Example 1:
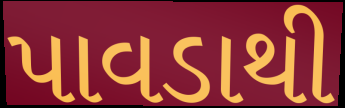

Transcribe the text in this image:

પાવડાથી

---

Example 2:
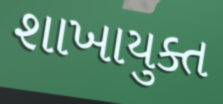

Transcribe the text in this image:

શાખાયુક્ત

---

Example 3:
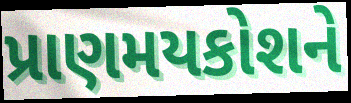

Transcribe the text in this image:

પ્રાણમયકોશને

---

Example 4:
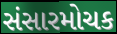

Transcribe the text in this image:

સંસારમોચક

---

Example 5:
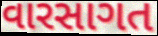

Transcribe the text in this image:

વારસાગત